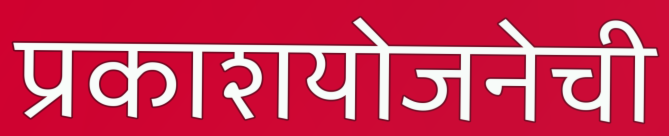
प्रकाशयोजनेची